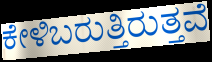
ಕೇಳಿಬರುತ್ತಿರುತ್ತವೆ